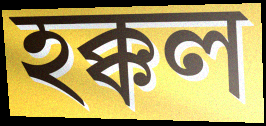
হক্কল